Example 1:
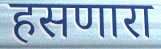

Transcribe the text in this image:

हसणारा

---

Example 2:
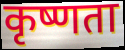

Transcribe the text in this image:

कृष्णता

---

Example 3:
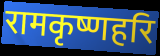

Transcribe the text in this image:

रामकृष्णहरि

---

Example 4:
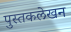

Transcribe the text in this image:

पुस्तकलेखन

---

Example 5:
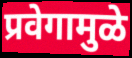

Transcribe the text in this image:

प्रवेगामुळे